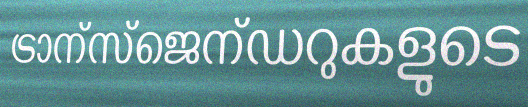
ട്രാന്സ്ജെന്ഡറുകളുടെ